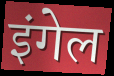
इंगेल